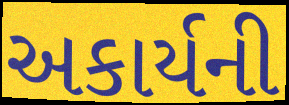
અકાર્યની